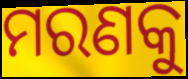
ମରଣକୁ